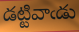
డట్టివాఁడు